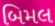
બિમલ